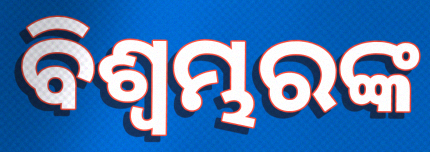
ବିଶ୍ୱମ୍ଭରଙ୍କ